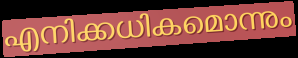
എനിക്കധികമൊന്നും